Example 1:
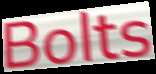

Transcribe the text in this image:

Bolts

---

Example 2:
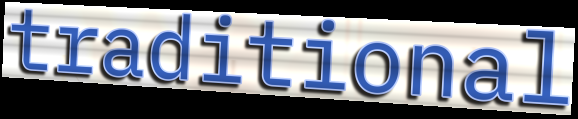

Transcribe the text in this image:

traditional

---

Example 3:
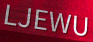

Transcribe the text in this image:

LJEWU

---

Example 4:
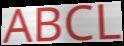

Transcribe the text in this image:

ABCL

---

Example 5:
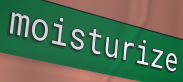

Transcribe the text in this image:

moisturize